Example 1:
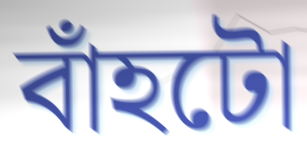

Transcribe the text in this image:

বাঁহটো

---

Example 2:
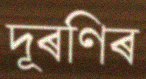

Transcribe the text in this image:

দূৰণিৰ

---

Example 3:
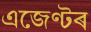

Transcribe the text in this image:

এজেণ্টৰ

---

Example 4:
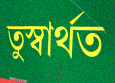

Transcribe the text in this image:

তুস্বাৰ্থত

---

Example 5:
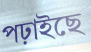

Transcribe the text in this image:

পঢ়াইছে